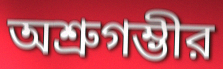
অশ্রুগম্ভীর